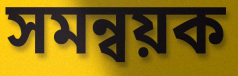
সমন্বয়ক